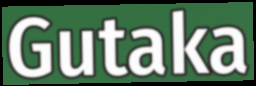
Gutaka